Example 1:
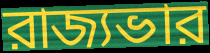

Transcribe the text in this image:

রাজ্যভার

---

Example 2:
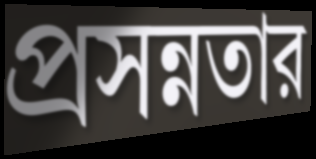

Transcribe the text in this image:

প্রসন্নতার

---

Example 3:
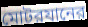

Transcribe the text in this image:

মোটরযানের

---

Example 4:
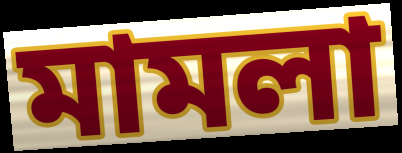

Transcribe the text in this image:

মামলা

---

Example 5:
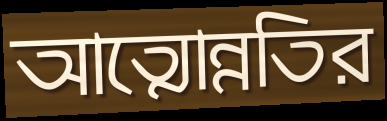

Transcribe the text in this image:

আত্মোন্নতির